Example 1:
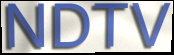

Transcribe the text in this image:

NDTV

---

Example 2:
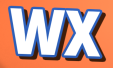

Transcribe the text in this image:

WX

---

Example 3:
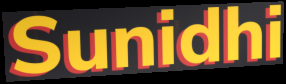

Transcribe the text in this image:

Sunidhi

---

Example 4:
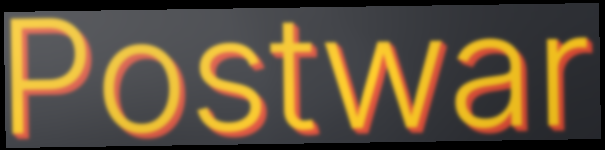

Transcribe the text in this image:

Postwar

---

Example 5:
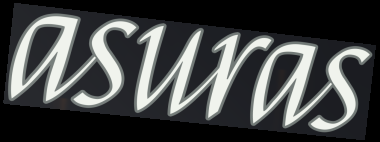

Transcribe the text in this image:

asuras